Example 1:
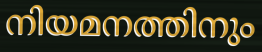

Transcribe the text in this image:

നിയമനത്തിനും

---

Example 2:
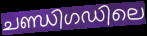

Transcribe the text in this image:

ചണ്ഡിഗഡിലെ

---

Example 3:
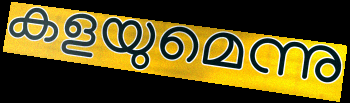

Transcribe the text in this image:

കളയുമെന്നു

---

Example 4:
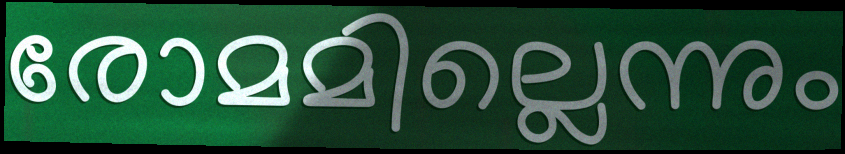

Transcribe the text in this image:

രോമമില്ലെന്നും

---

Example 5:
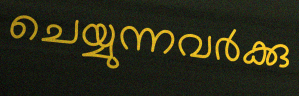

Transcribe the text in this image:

ചെയ്യുന്നവർക്കു